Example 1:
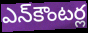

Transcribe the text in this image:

ఎన్‌కౌంటర్ల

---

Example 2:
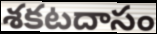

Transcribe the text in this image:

శకటదాసం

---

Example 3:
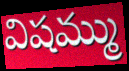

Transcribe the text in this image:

విషమ్ము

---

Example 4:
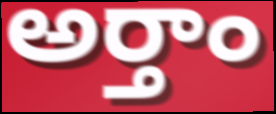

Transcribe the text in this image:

అర్తాం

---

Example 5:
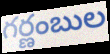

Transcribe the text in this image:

గర్ణంబుల